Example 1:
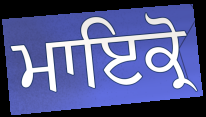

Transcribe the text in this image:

ਮਾਇਕ੍ਰੋ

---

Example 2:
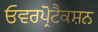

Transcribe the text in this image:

ਓਵਰਪ੍ਰੋਟੈਕਸ਼ਨ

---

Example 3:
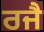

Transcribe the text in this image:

ਰਜੈ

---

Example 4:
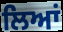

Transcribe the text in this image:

ਲਿਆਂ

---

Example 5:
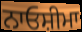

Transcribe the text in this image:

ਨਾਓਸ਼ੀਮਾ